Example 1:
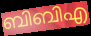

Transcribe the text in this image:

ബിബിഎ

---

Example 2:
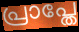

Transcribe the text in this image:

പ്രാപ്തേ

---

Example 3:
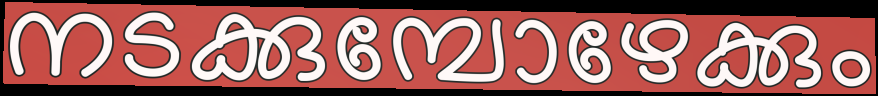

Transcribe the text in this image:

നടക്കുമ്പോഴേക്കും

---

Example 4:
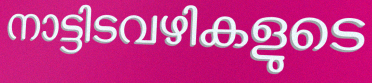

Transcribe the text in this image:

നാട്ടിടവഴികളുടെ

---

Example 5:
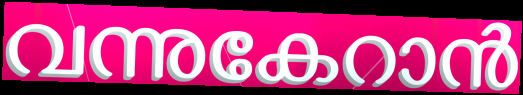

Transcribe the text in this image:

വന്നുകേറാൻ